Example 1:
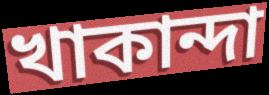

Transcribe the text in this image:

খাকান্দা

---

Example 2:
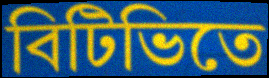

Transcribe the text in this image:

বিটিভিতে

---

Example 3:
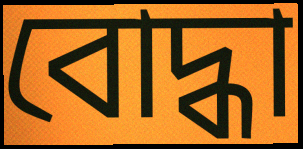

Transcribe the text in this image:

বোদ্ধা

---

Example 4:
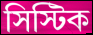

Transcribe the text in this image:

সিস্টিক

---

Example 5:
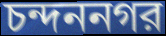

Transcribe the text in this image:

চন্দননগর